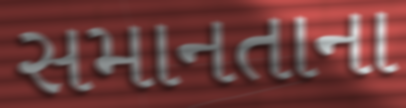
સમાનતાના